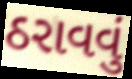
ઠરાવવું